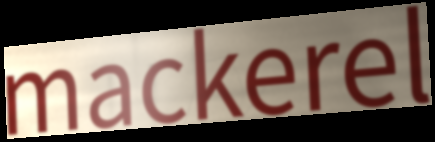
mackerel